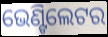
ଭେଣ୍ଟିଲେଟର